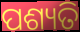
ପଶ୍ୟତି